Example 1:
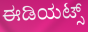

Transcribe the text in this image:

ಈಡಿಯಟ್ಸ್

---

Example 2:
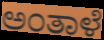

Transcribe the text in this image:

ಅಂತಾಳೆ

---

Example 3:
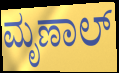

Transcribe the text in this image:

ಮೃಣಾಲ್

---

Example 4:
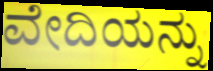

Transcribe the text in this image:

ವೇದಿಯನ್ನು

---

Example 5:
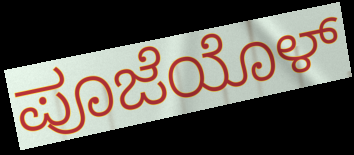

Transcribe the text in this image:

ಪೂಜೆಯೊಳ್